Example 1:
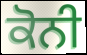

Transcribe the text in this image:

ਕੋਨੀ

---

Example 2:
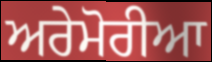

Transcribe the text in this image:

ਅਰੇਮੋਰੀਆ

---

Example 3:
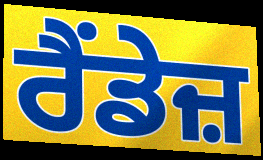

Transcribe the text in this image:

ਰੈਂਡੇਜ਼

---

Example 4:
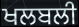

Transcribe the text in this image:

ਖਲਬਲੀ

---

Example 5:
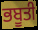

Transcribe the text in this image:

ਭਬੂਤੀ